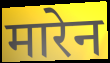
मारेन